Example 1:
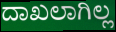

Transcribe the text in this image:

ದಾಖಲಾಗಿಲ್ಲ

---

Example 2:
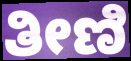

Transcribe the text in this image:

ತೀಣಿ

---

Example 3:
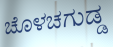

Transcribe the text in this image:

ಚೊಳಚಗುಡ್ಡ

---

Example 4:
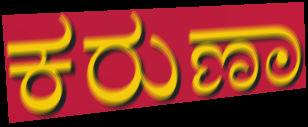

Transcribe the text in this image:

ಕರುಣಾ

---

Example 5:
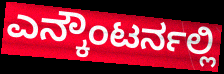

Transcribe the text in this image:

ಎನ್ಕೌಂಟರ್ನಲ್ಲಿ